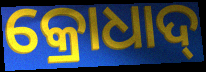
କ୍ରୋଧାଦ୍